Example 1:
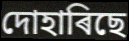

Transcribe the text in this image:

দোহাৰিছে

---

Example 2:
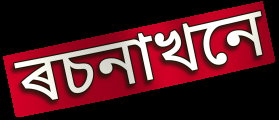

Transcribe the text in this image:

ৰচনাখনে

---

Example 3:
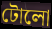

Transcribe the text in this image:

টোলো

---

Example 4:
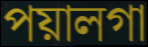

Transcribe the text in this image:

পয়ালগা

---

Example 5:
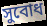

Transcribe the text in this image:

সুবোধ